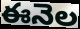
ఈనెల